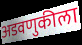
अडवणुकीला